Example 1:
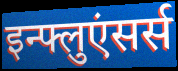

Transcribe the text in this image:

इन्फ्लुएंसर्स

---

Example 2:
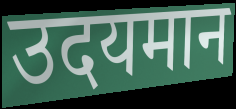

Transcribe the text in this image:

उदयमान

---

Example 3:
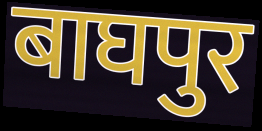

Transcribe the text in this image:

बाघपुर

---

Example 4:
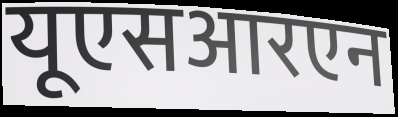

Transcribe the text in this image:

यूएसआरएन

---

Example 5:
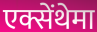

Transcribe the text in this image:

एक्सेंथेमा